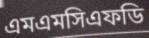
এমএমসিএফডি